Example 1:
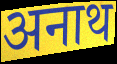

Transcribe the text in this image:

अनाथ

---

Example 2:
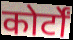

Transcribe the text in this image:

कोर्टों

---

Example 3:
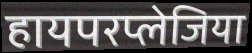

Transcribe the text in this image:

हायपरप्लेजिया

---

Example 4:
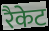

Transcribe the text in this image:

रैकेट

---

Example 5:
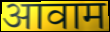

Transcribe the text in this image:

आवाम